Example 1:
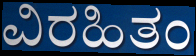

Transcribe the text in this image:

ವಿರಹಿತಂ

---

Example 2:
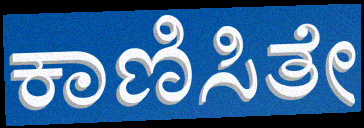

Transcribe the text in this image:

ಕಾಣಿಸಿತೇ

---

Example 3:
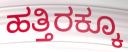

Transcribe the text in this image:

ಹತ್ತಿರಕ್ಕೂ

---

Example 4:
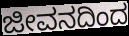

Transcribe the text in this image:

ಜೀವನದಿಂದ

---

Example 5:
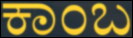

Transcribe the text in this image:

ಕಾಂಬ